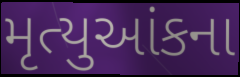
મૃત્યુઆંકના